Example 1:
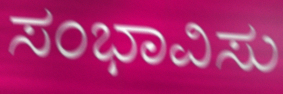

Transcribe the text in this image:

ಸಂಭಾವಿಸು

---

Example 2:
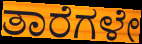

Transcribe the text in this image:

ತಾರೆಗಳೇ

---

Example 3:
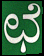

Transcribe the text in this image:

ಛೆ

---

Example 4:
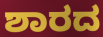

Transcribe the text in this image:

ಶಾರದ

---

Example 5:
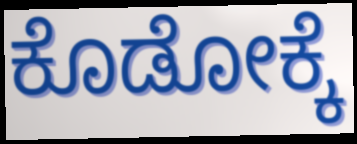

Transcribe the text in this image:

ಕೊಡೋಕ್ಕೆ